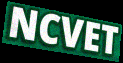
NCVET